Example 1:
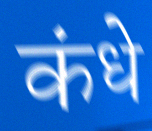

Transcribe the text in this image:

कंधे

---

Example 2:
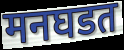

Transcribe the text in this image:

मनघडत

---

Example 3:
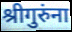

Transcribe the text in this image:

श्रीगुरुंना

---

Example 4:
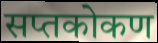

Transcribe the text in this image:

सप्तकोकण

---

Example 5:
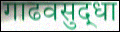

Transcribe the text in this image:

गाढवसुद्धा